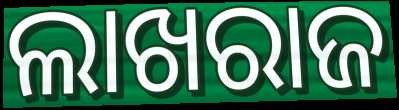
ଲାଖରାଜ